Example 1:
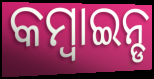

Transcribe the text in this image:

କମ୍ବାଇନ୍ଡ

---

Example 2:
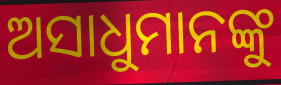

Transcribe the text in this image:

ଅସାଧୁମାନଙ୍କୁ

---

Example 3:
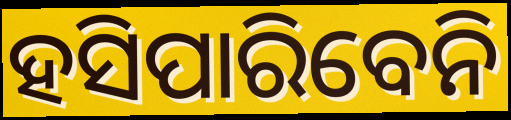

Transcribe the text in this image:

ହସିପାରିବେନି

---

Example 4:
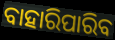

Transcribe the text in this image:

ବାହାରିପାରିବ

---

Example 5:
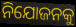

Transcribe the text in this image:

ନିଯୋଜନକୁ